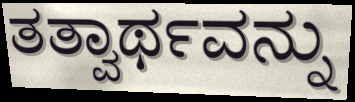
ತತ್ವಾರ್ಥವನ್ನು